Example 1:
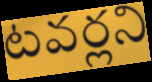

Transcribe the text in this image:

టవర్లని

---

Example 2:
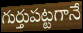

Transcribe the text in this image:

గుర్తుపట్టగానే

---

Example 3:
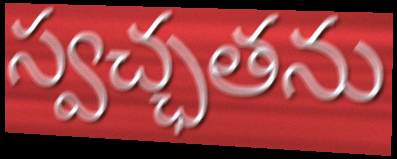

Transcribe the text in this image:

స్వచ్ఛతను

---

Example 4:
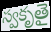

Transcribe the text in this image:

స్వకృతై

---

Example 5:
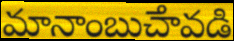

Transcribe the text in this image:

మానాంబుౘావడి